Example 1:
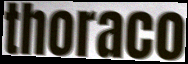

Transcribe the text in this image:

thoraco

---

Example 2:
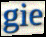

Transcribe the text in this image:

gie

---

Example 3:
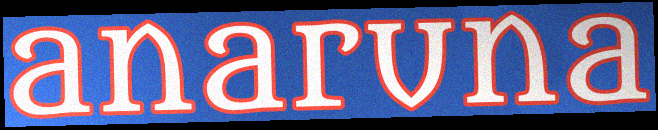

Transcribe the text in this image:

anaruna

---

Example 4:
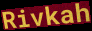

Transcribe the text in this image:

Rivkah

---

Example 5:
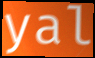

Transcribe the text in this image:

yal